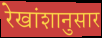
रेखांशानुसार